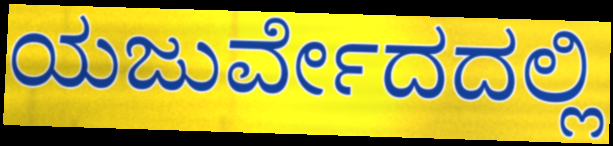
ಯಜುರ್ವೇದದಲ್ಲಿ